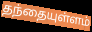
தந்தையுள்ளம்